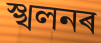
স্খলনৰ